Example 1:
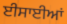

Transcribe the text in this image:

ਈਸਾਈਆਂ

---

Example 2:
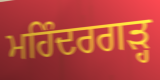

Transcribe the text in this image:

ਮਹਿੰਦਰਗੜ੍ਹ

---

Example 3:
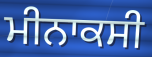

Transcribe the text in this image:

ਮੀਨਾਕਸੀ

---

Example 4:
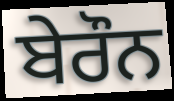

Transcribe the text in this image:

ਬੇਰੌਨ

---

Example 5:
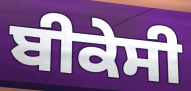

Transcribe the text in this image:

ਬੀਕੇਸੀ